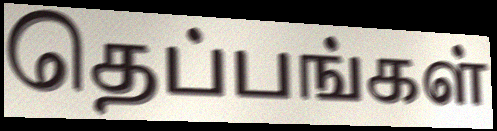
தெப்பங்கள்